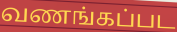
வணங்கப்பட